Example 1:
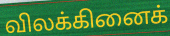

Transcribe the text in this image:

விலக்கினைக்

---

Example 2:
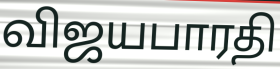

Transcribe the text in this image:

விஜயபாரதி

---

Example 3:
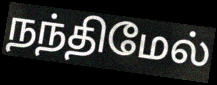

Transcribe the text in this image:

நந்திமேல்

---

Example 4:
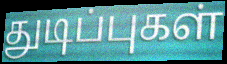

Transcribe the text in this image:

துடிப்புகள்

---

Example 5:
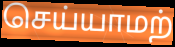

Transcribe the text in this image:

செய்யாமற்